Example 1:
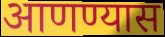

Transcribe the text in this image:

आणण्यास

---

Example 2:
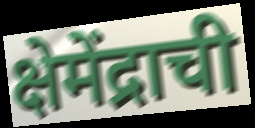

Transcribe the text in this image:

क्षेमेंद्राची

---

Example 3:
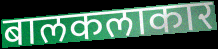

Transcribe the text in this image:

बालकलाकार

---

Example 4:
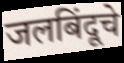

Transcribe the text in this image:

जलबिंदूचे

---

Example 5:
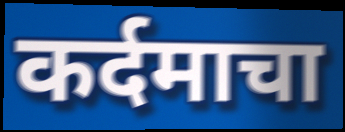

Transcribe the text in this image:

कर्दमाचा